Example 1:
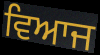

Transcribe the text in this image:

ਵਿਆਜ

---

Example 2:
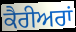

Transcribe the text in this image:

ਕੈਰੀਅਰਾਂ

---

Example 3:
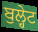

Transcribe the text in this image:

ਬੁਲ੍ਹੇਟ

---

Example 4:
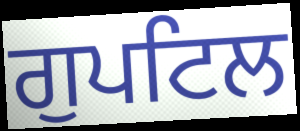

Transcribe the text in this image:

ਗੁਪਟਿਲ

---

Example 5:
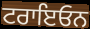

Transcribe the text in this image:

ਟਰਾਇਓਨ